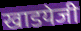
खाडयेजी